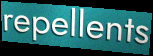
repellents